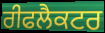
ਰੀਫਲੈਕਟਰ